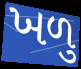
ખળુ